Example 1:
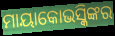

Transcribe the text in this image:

ମାୟାକୋଭସ୍କିଙ୍କର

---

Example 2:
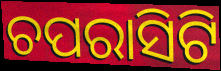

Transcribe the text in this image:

ଚପରାସିଟି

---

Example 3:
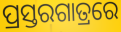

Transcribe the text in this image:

ପ୍ରସ୍ତରଗାତ୍ରରେ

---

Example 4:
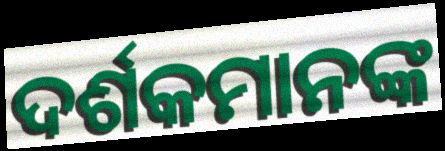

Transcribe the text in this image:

ଦର୍ଶକମାନଙ୍କ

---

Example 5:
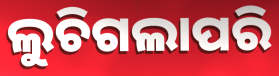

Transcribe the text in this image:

ଲୁଚିଗଲାପରି